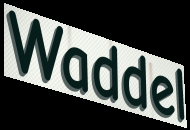
Waddel